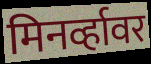
मिनर्व्हावर